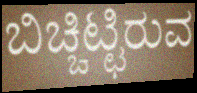
ಬಿಚ್ಚಿಟ್ಟಿರುವ